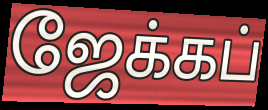
ஜேக்கப்